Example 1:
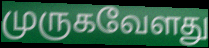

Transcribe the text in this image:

முருகவேளது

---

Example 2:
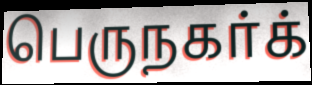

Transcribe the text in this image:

பெருநகர்க்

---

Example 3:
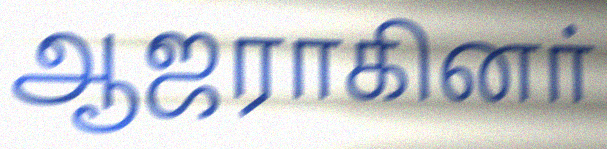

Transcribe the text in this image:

ஆஜராகினர்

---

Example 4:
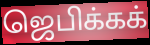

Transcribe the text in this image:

ஜெபிக்கக்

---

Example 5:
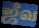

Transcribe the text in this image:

ஜீவ